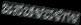
ಜನಚಳವಳಿಗಳ